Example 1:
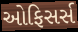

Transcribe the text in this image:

ઓફિસર્સ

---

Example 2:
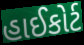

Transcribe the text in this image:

હાઈકોર્ટ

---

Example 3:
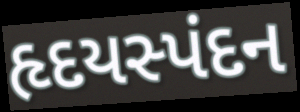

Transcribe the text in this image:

હૃદયસ્પંદન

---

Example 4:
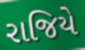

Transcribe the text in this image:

રાજિયે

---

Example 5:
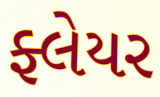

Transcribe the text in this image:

ફ્લેયર